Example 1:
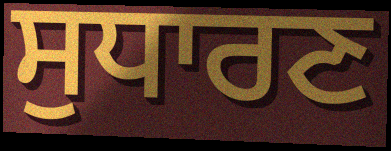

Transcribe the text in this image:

ਸੁਧਾਰਣ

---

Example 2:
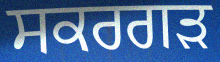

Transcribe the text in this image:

ਸਕਰਗੜ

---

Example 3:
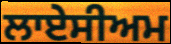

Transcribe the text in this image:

ਲਾਏਸੀਅਮ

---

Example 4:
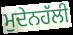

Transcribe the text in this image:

ਮੁਦੇਨਹੱਲੀ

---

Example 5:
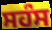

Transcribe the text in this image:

ਸਹੰਸ